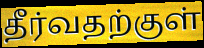
தீர்வதற்குள்